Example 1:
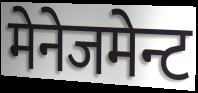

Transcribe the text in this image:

मेनेजमेन्ट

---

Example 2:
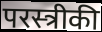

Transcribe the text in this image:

परस्त्रीकी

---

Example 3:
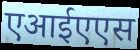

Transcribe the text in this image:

एआईएएस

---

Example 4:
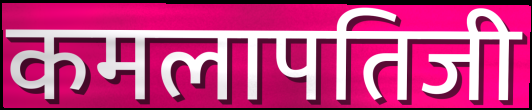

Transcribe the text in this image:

कमलापतिजी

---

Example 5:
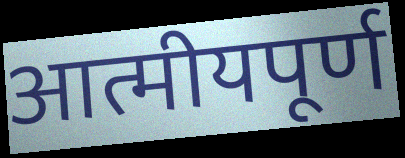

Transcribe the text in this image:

आत्मीयपूर्ण